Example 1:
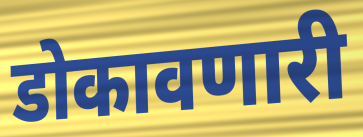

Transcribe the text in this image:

डोकावणारी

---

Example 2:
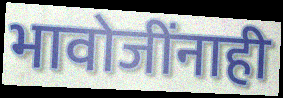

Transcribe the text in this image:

भावोजींनाही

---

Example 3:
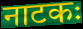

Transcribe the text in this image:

नाटकः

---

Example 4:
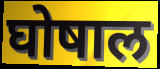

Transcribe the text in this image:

घोषाल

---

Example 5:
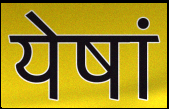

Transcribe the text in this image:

येषां